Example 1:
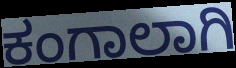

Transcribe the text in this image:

ಕಂಗಾಲಾಗಿ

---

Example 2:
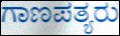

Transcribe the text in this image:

ಗಾಣಪತ್ಯರು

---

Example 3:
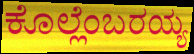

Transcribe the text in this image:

ಕೊಲ್ಲೆಂಬರಯ್ಯ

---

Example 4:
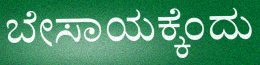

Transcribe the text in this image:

ಬೇಸಾಯಕ್ಕೆಂದು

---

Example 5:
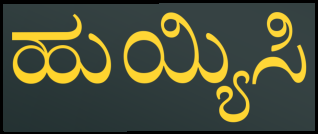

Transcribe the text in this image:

ಹುಯ್ಯಿಸಿ